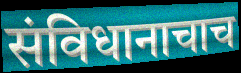
संविधानाचाच